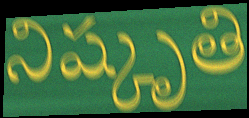
నిష్కృతి